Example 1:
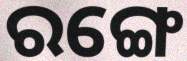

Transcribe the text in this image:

ରଙ୍ଗେ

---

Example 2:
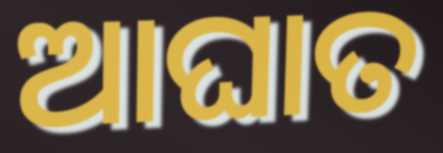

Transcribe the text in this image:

ଆଘାତ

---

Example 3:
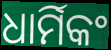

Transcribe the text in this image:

ଧାର୍ମିକଂ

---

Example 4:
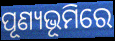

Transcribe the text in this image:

ପୂଣ୍ୟଭୂମିରେ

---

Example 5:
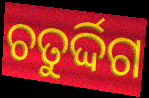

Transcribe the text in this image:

ଚତୁର୍ଦ୍ଦିଗ